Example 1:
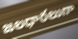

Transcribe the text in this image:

జలధారలుగా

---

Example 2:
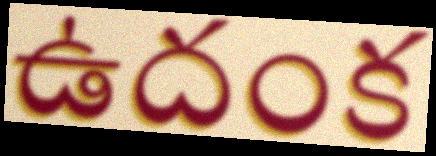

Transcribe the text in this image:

ఉదంక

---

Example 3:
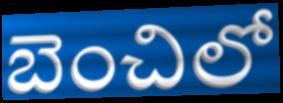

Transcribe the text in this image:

బెంచిలో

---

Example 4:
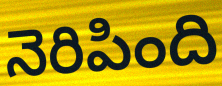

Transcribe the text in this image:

నెరిపింది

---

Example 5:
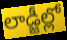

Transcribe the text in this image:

లాడ్జీల్లో